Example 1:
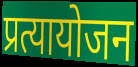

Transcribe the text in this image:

प्रत्यायोजन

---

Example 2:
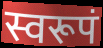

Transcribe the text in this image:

स्वरूपं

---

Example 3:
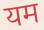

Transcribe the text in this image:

यम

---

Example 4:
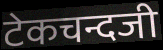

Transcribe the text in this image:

टेकचन्दजी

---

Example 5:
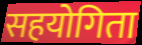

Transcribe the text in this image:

सहयोगिता